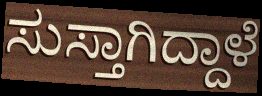
ಸುಸ್ತಾಗಿದ್ದಾಳೆ